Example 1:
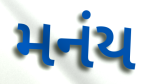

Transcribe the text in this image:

મનંય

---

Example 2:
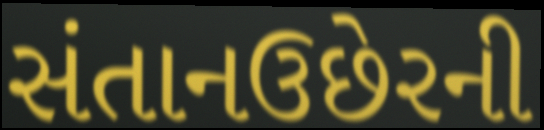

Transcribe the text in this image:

સંતાનઉછેરની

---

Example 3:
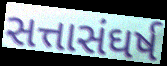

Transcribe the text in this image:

સત્તાસંઘર્ષ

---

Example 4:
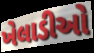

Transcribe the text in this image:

ખેલાડીઓ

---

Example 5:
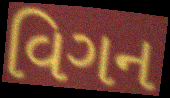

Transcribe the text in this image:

વિગન